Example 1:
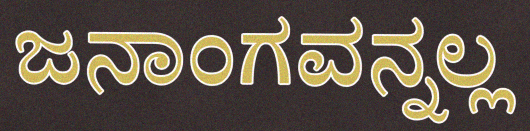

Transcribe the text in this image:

ಜನಾಂಗವನ್ನಲ್ಲ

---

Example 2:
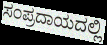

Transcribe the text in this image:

ಸಂಪ್ರದಾಯದಲ್ಲಿ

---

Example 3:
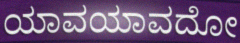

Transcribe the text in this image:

ಯಾವಯಾವದೋ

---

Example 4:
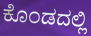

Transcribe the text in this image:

ಕೊಂಡದಲ್ಲಿ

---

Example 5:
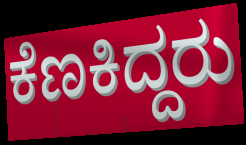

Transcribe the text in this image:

ಕೆಣಕಿದ್ದರು